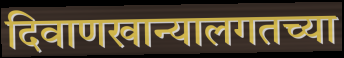
दिवाणखान्यालगतच्या